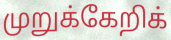
முறுக்கேறிக்